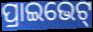
ପ୍ରାଇଭେଟ୍